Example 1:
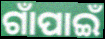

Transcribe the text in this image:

ଗାଁପାଇଁ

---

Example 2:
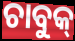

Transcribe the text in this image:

ଚାବୁକ୍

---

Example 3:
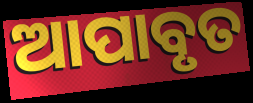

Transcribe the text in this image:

ଆପାବୃତ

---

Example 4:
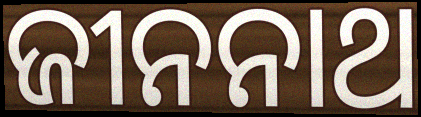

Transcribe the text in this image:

ଜୀନନାଥ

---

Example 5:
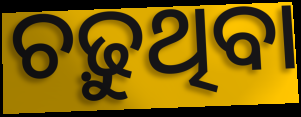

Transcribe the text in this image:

ଚଢ଼ୁଥିବା